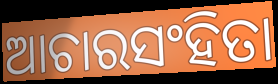
ଆଚାରସଂହିତା